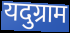
यदुग्राम